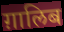
ग़ालिब